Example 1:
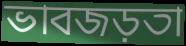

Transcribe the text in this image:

ভাবজড়তা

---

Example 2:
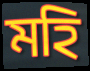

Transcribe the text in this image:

মহি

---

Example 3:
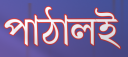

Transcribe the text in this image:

পাঠালই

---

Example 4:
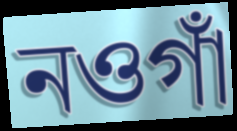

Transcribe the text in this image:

নওগাঁ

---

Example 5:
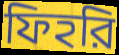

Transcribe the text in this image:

ফিহরি